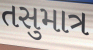
તસુમાત્ર